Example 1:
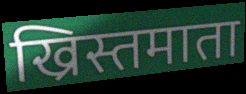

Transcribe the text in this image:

ख्रिस्तमाता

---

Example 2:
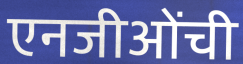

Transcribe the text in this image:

एनजीओंची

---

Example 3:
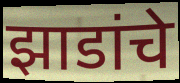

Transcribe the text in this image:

झाडांचे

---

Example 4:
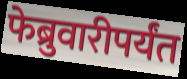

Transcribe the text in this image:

फेब्रुवारीपर्यंत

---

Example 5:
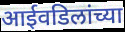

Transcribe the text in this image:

आईवडिलांच्या